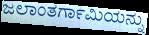
ಜಲಾಂತರ್ಗಾಮಿಯನ್ನು